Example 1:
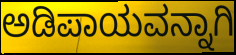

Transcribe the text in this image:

ಅಡಿಪಾಯವನ್ನಾಗಿ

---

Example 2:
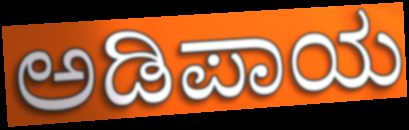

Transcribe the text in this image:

ಅಡಿಪಾಯ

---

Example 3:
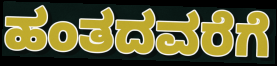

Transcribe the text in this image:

ಹಂತದವರೆಗೆ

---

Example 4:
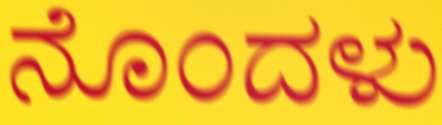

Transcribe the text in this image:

ನೊಂದಳು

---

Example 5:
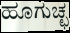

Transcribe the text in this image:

ಹೂಗುಚ್ಛ